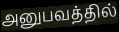
அனுபவத்தில்